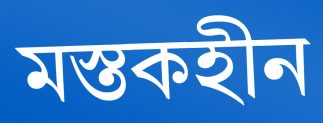
মস্তকহীন